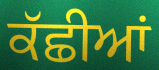
ਕੱਛੀਆਂ